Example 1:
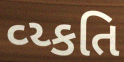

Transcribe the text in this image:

વ્ય્કતિ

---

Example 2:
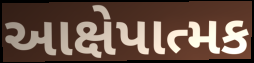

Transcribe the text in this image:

આક્ષેપાત્મક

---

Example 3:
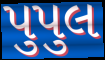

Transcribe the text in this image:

પુપુલ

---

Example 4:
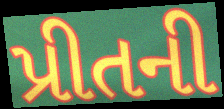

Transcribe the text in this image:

પ્રીતની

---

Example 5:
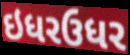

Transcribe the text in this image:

ઇધરઉધર